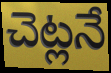
చెట్లనే